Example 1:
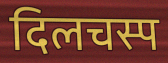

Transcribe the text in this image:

दिलचस्प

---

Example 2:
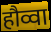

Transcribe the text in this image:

हौव्वा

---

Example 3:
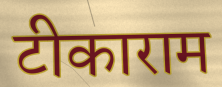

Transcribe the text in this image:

टीकाराम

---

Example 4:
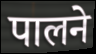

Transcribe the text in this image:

पालने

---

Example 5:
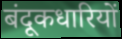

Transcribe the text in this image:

बंदूकधारियों